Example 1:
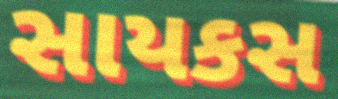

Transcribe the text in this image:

સાયકસ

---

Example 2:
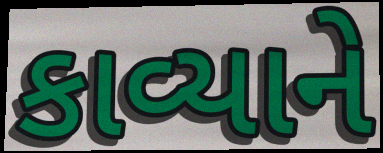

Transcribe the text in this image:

કાવ્યાને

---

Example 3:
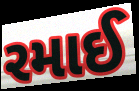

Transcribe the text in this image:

રમાઈ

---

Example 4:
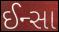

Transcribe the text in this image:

ઈન્સા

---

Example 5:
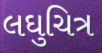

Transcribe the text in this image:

લઘુચિત્ર